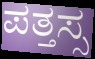
ಪತ್ತಸ್ಸ